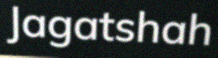
Jagatshah